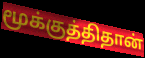
மூக்குத்திதான்